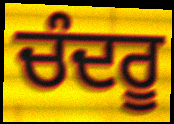
ਚੰਦਰੂ